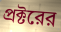
প্রক্টরের